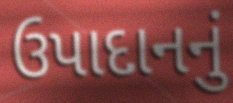
ઉપાદાનનું